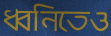
ধ্বনিতেও